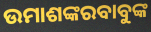
ଉମାଶଙ୍କରବାବୁଙ୍କ